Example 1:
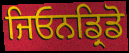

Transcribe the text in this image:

ਜਿਓਨਡ੍ਰਿਡੋ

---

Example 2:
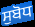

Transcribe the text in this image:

ਸੁਬੋਧ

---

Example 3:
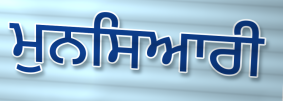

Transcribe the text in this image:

ਮੁਨਸਿਆਰੀ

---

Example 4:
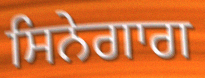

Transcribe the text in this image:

ਸਿਨੇਗਾਗ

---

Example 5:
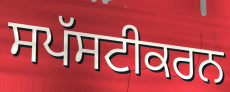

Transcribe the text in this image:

ਸਪੱਸਟੀਕਰਨ